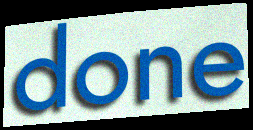
done